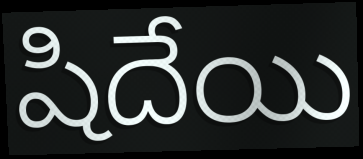
షిదేయి